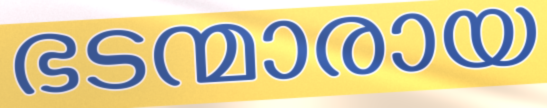
ഭടന്മാരായ